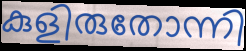
കുളിരുതോന്നി